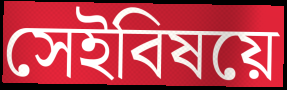
সেইবিষয়ে